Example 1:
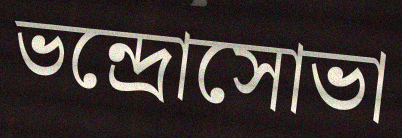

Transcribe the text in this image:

ভন্দ্রোসোভা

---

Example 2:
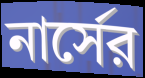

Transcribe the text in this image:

নার্সের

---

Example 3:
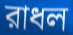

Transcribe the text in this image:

রাধল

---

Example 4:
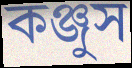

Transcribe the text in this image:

কঞ্জুস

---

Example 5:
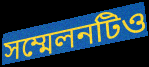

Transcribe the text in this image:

সম্মেলনটিও